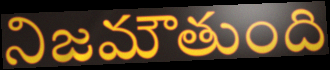
నిజమౌతుంది